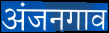
अंजनगाव